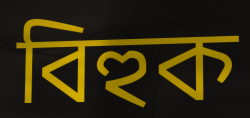
বিহুক